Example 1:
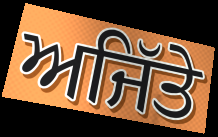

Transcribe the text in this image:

ਅਜਿੱਤੇ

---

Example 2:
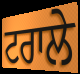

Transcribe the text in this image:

ਟਰਾਲੇ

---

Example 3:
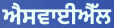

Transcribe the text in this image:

ਐਸਵਾਈਐੱਲ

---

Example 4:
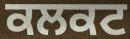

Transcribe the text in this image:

ਕਲਕਟ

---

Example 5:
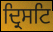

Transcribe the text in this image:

ਦ੍ਰਿਸਟਿ